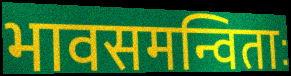
भावसमन्विताः